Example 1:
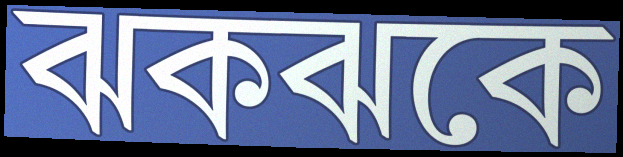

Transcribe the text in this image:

ঝকঝকে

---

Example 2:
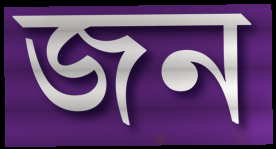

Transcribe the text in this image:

জন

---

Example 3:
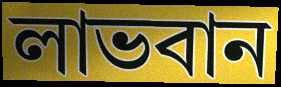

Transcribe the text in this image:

লাভবান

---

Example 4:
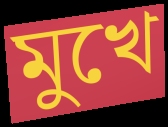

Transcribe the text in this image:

মুখে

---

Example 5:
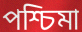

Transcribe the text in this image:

পশ্চিমা